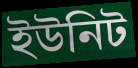
ইউনিট